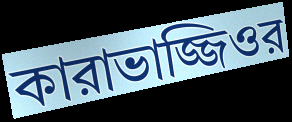
কারাভাজ্জিওর